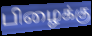
பிழைக்கு